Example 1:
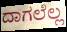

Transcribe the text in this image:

ದಾಗಲೆಲ್ಲ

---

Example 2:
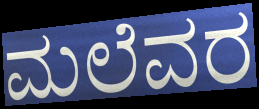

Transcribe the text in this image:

ಮಲೆವರ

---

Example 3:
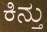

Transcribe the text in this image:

ಕಿನ್ತು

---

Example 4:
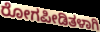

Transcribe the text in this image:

ರೋಗಪೀಡಿತಳಾಗಿ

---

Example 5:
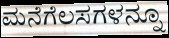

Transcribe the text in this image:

ಮನೆಗೆಲಸಗಳನ್ನೂ